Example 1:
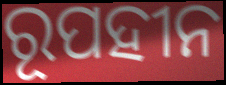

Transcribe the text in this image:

ରୂପହୀନ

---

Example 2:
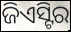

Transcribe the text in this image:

ଜିଏସ୍ଟିର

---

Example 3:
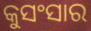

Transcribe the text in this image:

କୁସଂସାର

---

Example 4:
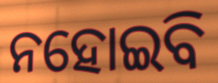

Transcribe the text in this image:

ନହୋଇବି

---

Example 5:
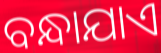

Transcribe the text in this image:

ବନ୍ଧାଯାଏ